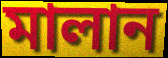
মালান